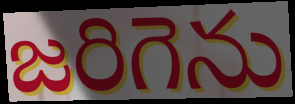
జరిగెను